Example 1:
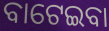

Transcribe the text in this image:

ବାଟେଇବା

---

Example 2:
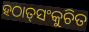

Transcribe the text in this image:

ହଠାତ୍‌ସଂକୁଚିତ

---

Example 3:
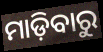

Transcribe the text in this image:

ମାଡ଼ିବାରୁ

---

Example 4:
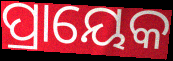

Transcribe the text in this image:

ପ୍ରାୟେକ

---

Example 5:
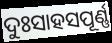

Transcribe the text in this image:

ଦୁଃସାହସପୂର୍ଣ୍ଣ